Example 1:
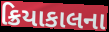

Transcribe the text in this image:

ક્રિયાકાલના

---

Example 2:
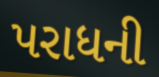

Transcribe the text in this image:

પરાધની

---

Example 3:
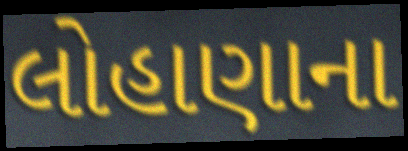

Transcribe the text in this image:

લોહાણાના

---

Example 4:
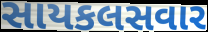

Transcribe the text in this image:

સાયકલસવાર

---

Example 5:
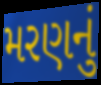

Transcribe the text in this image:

મરણનું